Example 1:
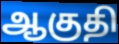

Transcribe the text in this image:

ஆகுதி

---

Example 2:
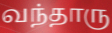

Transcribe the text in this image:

வந்தாரு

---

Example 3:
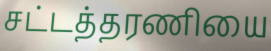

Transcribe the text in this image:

சட்டத்தரணியை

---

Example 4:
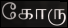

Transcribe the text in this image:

கோரு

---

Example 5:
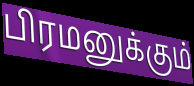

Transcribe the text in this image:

பிரமனுக்கும்